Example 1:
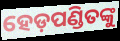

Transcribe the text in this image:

ହେଡ଼ପଣ୍ଡିତଙ୍କୁ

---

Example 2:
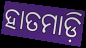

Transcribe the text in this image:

ହାତମାଡ଼ି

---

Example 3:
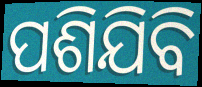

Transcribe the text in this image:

ପଶିଯିବି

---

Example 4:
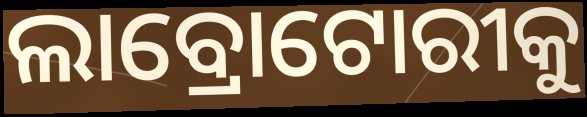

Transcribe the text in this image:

ଲାବ୍ରୋଟୋରୀକୁ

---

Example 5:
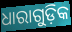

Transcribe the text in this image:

ଧାରାଗୁଡ଼ିକ